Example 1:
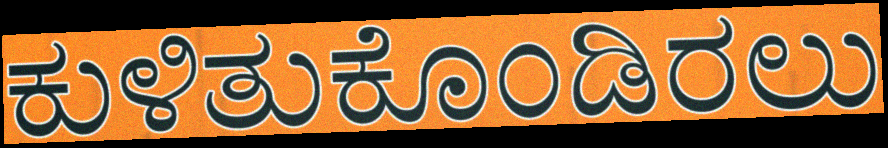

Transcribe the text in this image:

ಕುಳಿತುಕೊಂಡಿರಲು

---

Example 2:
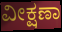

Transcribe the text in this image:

ವೀಕ್ಷಣಾ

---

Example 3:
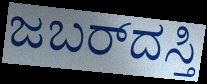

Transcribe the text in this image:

ಜಬರ್‌ದಸ್ತಿ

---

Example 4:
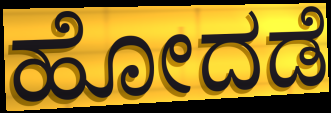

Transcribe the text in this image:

ಹೋದಡೆ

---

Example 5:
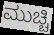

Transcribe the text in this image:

ಮುಚ್ಚಿ